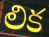
లిక